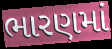
ભારણમાં